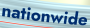
nationwide